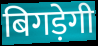
बिगड़ेगी